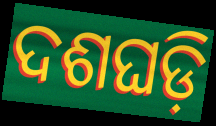
ଦଶଘଡ଼ି